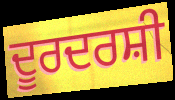
ਦੂਰਦਰਸ਼ੀ